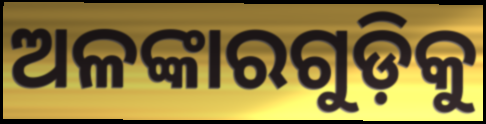
ଅଳଙ୍କାରଗୁଡ଼ିକୁ